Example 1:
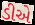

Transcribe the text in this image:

ડીએ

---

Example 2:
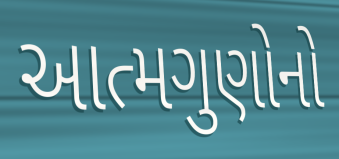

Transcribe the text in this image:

આત્મગુણોનો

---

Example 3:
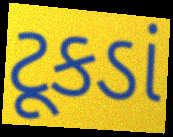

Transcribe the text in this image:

ટૂકડાં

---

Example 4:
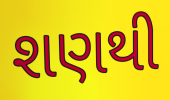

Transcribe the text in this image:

શણથી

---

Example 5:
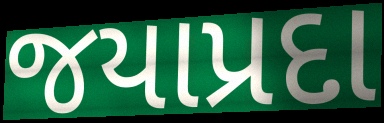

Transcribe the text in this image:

જયાપ્રદા